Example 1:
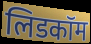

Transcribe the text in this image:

लिडकॉम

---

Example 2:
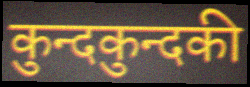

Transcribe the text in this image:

कुन्दकुन्दकी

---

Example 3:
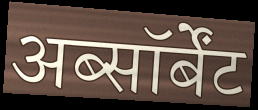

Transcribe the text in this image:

अब्सॉर्बेंट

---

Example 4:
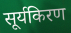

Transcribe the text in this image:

सूर्यकिरण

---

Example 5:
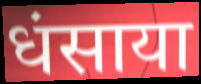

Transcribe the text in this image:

धंसाया